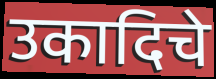
उकादिचे